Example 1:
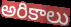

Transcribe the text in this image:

అరికాలు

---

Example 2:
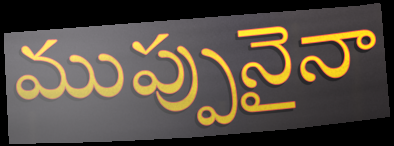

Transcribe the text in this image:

ముప్పునైనా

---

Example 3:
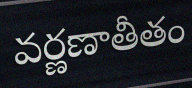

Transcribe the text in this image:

వర్ణణాతీతం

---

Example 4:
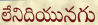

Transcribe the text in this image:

లేనిదియునగు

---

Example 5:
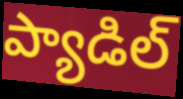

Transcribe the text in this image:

ప్యాడిల్